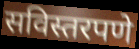
सविस्तरपणे